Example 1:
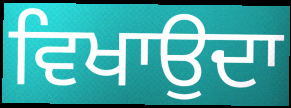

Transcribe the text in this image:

ਵਿਖਾਉਦਾ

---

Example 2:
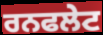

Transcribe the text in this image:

ਰਨਫਲੇਟ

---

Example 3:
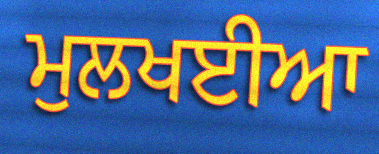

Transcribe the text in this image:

ਮੁਲਖਈਆ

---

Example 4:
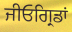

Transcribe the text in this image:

ਜੀਓਗ੍ਰਿਡਾਂ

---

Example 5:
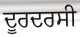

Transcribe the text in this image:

ਦੂਰਦਰਸੀ